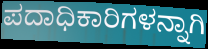
ಪದಾಧಿಕಾರಿಗಳನ್ನಾಗಿ